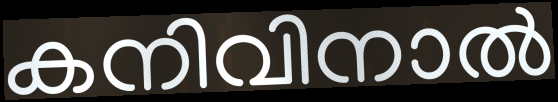
കനിവിനാൽ